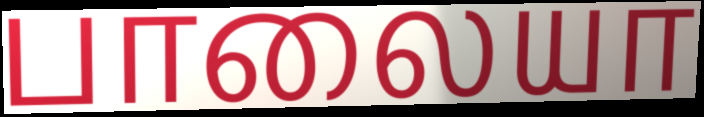
பாலையா